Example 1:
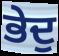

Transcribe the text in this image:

ਭੇਦੁ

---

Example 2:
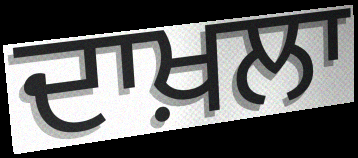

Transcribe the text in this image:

ਦਾਖ਼ਲਾ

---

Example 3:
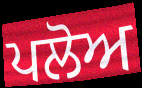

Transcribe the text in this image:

ਪਲੋਅ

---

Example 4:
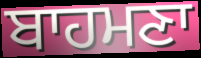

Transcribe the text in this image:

ਬਾਹਮਣਾ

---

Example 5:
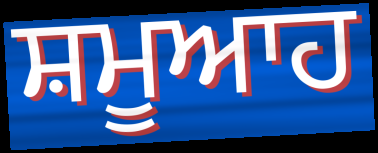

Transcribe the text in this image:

ਸ਼ਮੂਆਹ